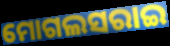
ମୋଗଲସରାଇ